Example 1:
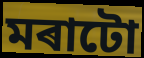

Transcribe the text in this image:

মৰাটো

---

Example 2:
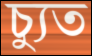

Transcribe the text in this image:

চ্যুত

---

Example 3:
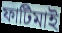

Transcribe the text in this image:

ফাটিমাই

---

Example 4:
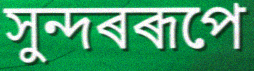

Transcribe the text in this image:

সুন্দৰৰূপে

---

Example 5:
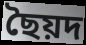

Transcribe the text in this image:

ছৈয়দ